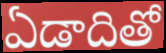
ఏడాదితో